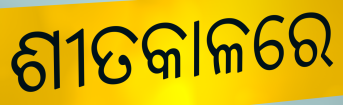
ଶୀତକାଳରେ